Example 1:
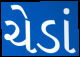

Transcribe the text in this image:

ચેડાં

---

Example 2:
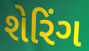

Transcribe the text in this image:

શેરિંગ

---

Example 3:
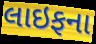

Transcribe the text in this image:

લાઇફના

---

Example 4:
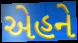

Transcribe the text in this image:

એહને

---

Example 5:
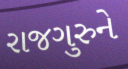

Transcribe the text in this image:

રાજગુરુને